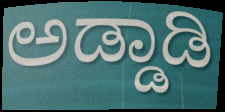
ಅಡ್ಡಾಡಿ